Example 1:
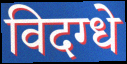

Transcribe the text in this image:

विदग्धे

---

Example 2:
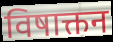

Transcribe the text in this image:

विषाक्तन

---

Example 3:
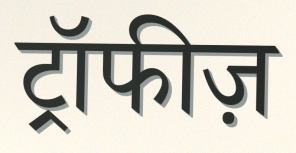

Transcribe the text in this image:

ट्रॉफीज़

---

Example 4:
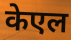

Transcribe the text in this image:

केएल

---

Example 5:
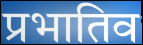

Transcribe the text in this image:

प्रभातिव